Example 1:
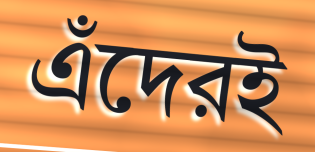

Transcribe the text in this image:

এঁদেরই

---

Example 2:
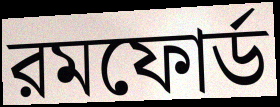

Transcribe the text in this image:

রমফোর্ড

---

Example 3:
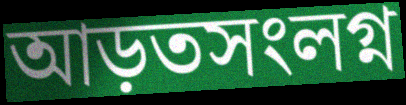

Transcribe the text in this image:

আড়তসংলগ্ন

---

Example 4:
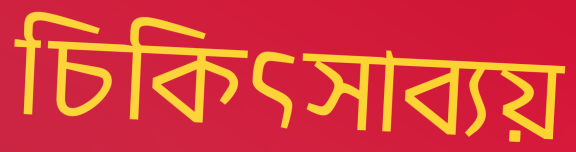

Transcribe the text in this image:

চিকিৎসাব্যয়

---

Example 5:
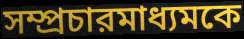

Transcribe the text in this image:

সম্প্রচারমাধ্যমকে